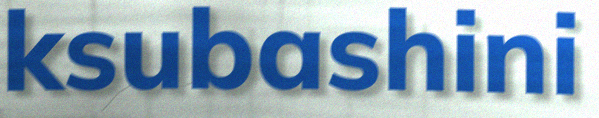
ksubashini